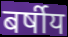
बर्षीय